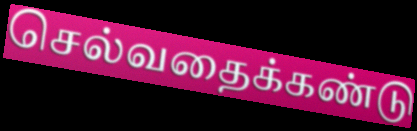
செல்வதைக்கண்டு